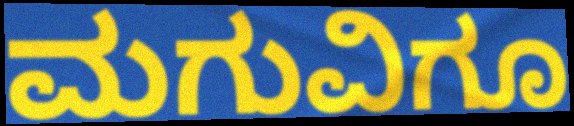
ಮಗುವಿಗೂ